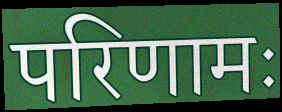
परिणामः